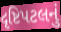
દૃષ્ટિપટલનું